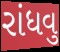
રાંધવુ